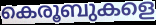
കെരൂബുകളെ